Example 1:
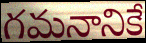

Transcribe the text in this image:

గమనానికే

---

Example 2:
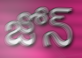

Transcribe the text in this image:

జోన్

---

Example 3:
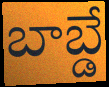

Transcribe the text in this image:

బాబ్డే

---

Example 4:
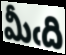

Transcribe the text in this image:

మీఁది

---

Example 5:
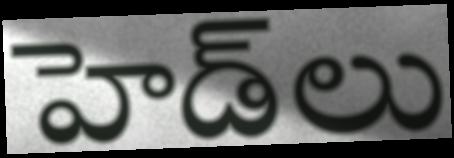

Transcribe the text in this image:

హెడ్‌లు